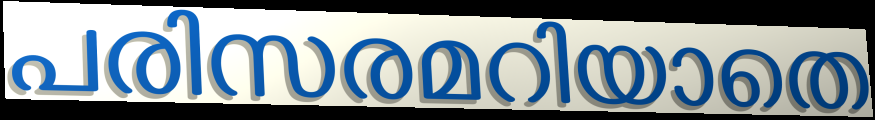
പരിസരമറിയാതെ